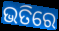
ଭତିରେ